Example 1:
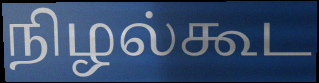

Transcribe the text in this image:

நிழல்கூட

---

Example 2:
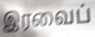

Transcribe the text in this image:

இரவைப்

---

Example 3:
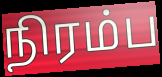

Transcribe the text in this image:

நிரம்ப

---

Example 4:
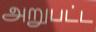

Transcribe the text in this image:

அறுபட்ட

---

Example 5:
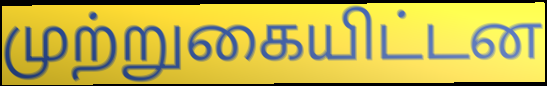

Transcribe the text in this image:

முற்றுகையிட்டன